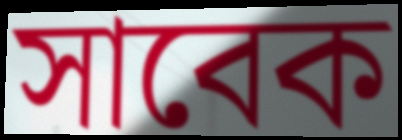
সাবেক